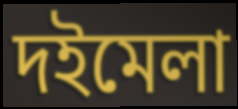
দইমেলা